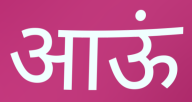
आऊं